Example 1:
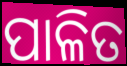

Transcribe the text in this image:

ପାଳିତ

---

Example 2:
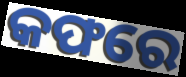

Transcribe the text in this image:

କଫରେ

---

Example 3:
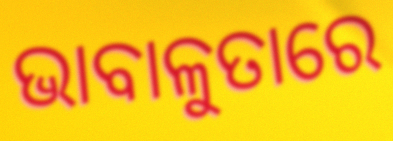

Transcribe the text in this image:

ଭାବାଳୁତାରେ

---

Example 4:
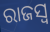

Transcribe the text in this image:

ରାଜସ୍ୱ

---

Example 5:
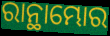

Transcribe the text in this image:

ରାନ୍ଥାମ୍ଭୋର